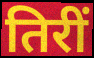
तिरीं